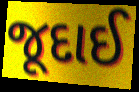
જૂદાઈ